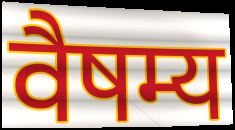
वैषम्‍य